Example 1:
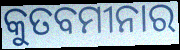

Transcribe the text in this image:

କୁତବମୀନାର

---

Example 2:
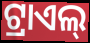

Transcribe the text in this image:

ଟ୍ରାଏଲ୍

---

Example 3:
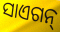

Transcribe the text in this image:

ସାଏଗନ୍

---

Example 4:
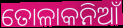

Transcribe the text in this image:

ତୋଳାକନିଆଁ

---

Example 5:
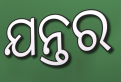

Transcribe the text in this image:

ଯନ୍ତର